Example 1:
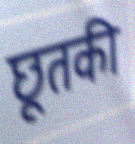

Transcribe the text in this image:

छूतकी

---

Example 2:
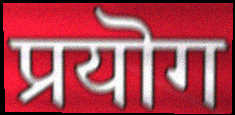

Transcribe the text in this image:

प्रयॊग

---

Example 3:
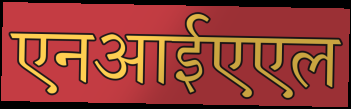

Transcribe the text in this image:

एनआईएएल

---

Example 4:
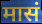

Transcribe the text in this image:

मासं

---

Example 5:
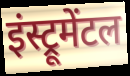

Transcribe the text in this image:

इंस्ट्रूमेंटल